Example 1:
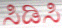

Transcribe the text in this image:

ಸಿಡಿಸಿ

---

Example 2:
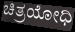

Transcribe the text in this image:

ಚಿತ್ರಯೋಧಿ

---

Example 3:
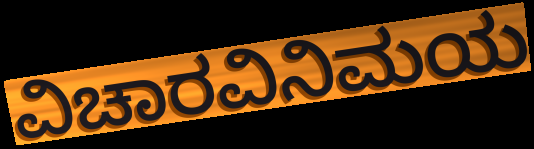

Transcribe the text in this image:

ವಿಚಾರವಿನಿಮಯ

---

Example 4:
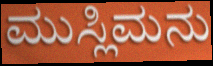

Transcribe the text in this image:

ಮುಸ್ಲಿಮನು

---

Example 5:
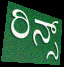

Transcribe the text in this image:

ರಿನ್ಸ್